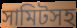
সামিটসহ